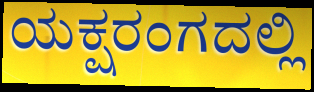
ಯಕ್ಷರಂಗದಲ್ಲಿ